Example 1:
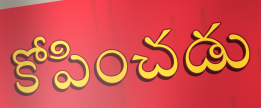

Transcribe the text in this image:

కోపించడు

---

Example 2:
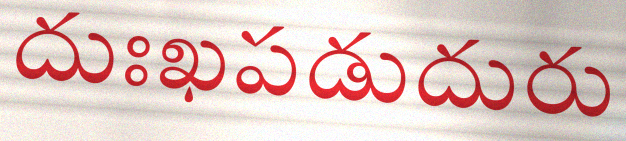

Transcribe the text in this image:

దుఃఖపడుదురు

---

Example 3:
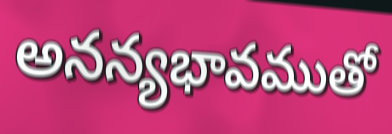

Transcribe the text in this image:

అనన్యభావముతో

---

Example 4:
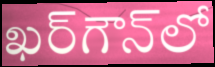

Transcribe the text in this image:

ఖర్‌గౌన్‌లో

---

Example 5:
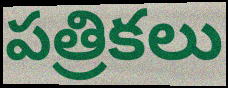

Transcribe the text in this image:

పత్రికలు